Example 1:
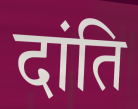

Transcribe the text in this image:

दांति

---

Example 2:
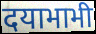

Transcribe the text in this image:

दयाभाभी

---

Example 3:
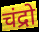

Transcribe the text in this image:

चंद्रो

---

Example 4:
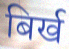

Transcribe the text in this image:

बिर्ख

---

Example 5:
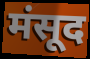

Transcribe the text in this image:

मंसूद